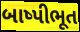
બાષ્પીભૂત